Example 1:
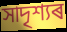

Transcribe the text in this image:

সাদৃশ্যৰ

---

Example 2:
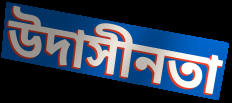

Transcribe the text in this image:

উদাসীনতা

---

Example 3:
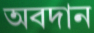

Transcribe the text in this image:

অবদান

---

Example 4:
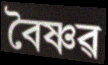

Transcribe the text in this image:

বৈষ্ণৱ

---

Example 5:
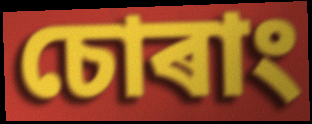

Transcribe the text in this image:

চোৰাং